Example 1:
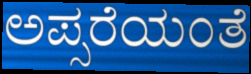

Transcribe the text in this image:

ಅಪ್ಸರೆಯಂತೆ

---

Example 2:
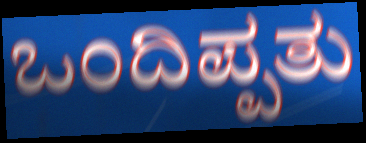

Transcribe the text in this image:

ಒಂದಿಪ್ಪತು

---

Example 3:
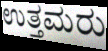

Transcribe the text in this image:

ಉತ್ತಮರು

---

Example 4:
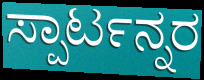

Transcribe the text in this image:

ಸ್ಪಾರ್ಟನ್ನರ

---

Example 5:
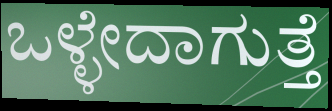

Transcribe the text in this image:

ಒಳ್ಳೇದಾಗುತ್ತೆ